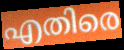
എതിരെ